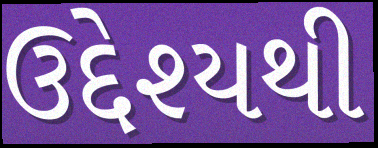
ઉદ્દેશ્યથી